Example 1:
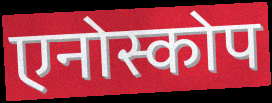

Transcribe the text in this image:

एनोस्कोप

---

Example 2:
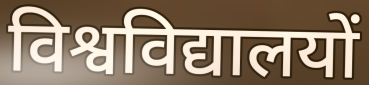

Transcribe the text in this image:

विश्वविद्यालयों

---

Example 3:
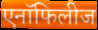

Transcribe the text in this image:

एनॉफिलीज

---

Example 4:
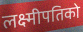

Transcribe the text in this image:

लक्ष्मीपतिको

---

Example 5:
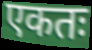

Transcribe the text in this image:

एकतः